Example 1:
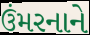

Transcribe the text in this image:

ઉંમરનાને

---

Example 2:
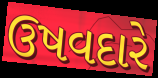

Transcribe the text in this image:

ઉષવદારે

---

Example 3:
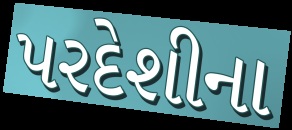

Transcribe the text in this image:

પરદેશીના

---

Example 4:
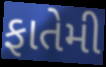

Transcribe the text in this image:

ફાતેમી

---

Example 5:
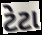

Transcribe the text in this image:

ટેટા